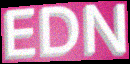
EDN